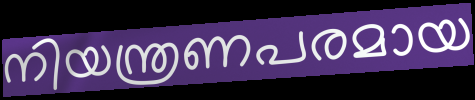
നിയന്ത്രണപരമായ